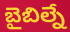
బైబిల్నే